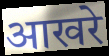
आखरे